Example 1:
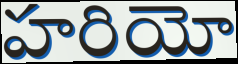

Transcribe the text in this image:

హరియో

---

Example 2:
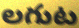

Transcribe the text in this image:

లగుట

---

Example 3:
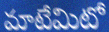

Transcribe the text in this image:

మాటేమిటో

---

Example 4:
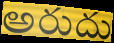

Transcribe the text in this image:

అరుదు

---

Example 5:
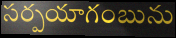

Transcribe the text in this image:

సర్పయాగంబును